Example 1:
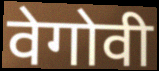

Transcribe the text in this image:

वेगोवी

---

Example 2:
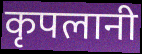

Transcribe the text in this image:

कृपलानी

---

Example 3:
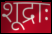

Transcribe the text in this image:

शूद्राः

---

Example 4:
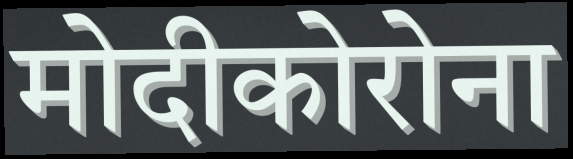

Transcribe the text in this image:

मोदीकोरोना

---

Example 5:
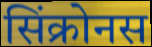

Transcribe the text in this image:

सिंक्रोनस